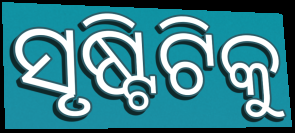
ସୃଷ୍ଟିଟିକୁ